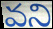
వని